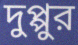
দুপ্পুর